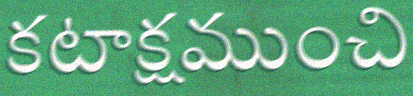
కటాక్షముంచి